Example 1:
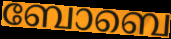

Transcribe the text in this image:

ബോബെ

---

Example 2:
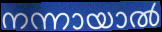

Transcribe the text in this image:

നന്നായാൽ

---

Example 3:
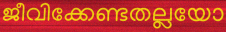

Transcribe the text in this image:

ജീവിക്കേണ്ടതല്ലയോ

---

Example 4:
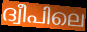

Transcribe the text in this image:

ദ്വീപിലെ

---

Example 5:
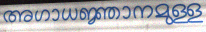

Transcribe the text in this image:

അഗാധജ്ഞാനമുള്ള